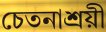
চেতনাশ্রয়ী